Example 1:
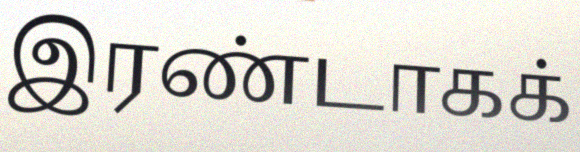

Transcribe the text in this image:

இரண்டாகக்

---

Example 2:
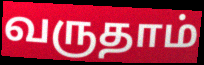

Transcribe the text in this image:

வருதாம்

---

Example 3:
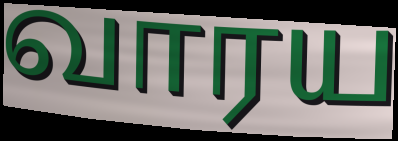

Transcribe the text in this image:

வாரய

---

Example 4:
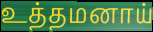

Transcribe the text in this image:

உத்தமனாய்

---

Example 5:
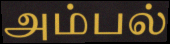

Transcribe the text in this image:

அம்பல்